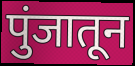
पुंजातून